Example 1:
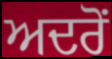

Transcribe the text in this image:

ਅਦਰੋਂ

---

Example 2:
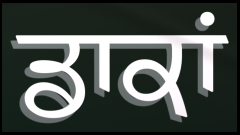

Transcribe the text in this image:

ਡਾਕਾਂ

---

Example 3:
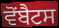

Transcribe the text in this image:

ਵੋਂਬੈਟਸ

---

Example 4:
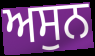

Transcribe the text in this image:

ਅਸੁਨ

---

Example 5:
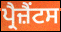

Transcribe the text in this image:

ਪ੍ਰੈਜ਼ੈਂਟਸ